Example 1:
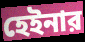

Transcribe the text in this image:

হেইনার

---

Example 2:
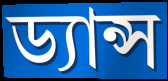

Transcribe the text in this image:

ড্যান্স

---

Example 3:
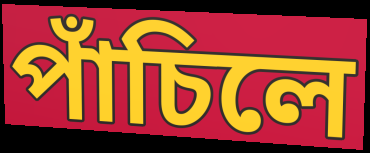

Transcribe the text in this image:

পাঁচিলে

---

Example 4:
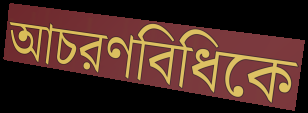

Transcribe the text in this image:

আচরণবিধিকে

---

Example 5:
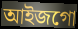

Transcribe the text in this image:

আইজগো